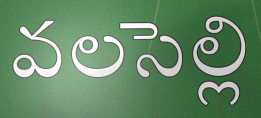
వలసెల్లి